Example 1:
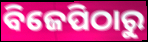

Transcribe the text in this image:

ବିଜେପିଠାରୁ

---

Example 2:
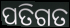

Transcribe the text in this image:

ପତିଗତ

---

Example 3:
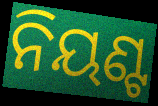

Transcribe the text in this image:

ନିୟଣ୍ଟ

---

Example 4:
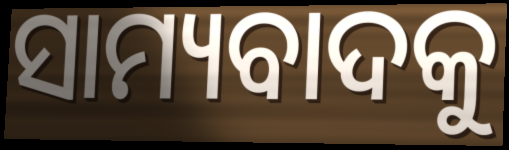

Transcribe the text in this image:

ସାମ୍ୟବାଦକୁ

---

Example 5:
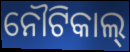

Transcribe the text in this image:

ନୌଟିକାଲ୍